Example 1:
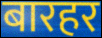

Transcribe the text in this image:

बारहर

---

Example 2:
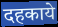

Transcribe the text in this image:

दहकाये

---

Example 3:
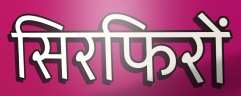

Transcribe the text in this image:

सिरफिरों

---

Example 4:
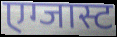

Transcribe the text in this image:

एग्जास्ट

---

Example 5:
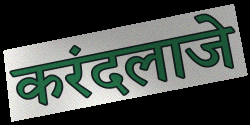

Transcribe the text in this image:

करंदलाजे